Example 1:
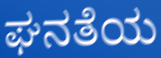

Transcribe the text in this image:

ಘನತೆಯ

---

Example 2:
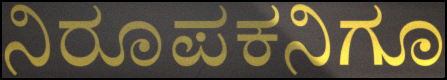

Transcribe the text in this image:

ನಿರೂಪಕನಿಗೂ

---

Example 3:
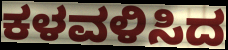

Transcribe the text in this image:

ಕಳವಳಿಸಿದ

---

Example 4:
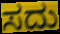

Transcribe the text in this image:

ಸದು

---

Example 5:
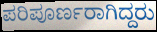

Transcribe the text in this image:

ಪರಿಪೂರ್ಣರಾಗಿದ್ದರು